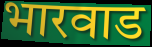
भारवाड